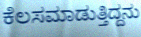
ಕೆಲಸಮಾಡುತ್ತಿದ್ದನು